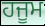
ਹਜੂਮ